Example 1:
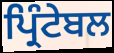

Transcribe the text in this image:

ਪ੍ਰਿੰਟੇਬਲ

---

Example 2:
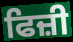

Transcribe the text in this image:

ਫਿਜ਼ੀ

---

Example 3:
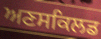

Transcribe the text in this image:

ਅਣਸਕਿਲਡ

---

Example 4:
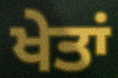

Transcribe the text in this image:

ਖੇਤਾਂ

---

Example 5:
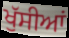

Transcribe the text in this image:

ਖੁੱਸੀਆਂ